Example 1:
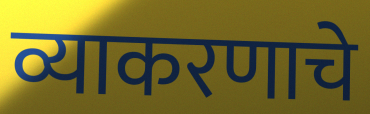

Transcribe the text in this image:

व्याकरणाचे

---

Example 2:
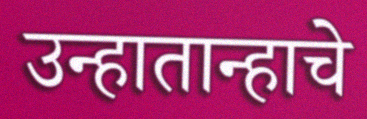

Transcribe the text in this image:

उन्हातान्हाचे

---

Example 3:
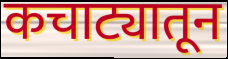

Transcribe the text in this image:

कचाट्यातून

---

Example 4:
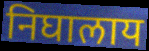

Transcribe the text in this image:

निघालाय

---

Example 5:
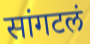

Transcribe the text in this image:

सांगटलं